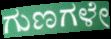
ಗುಣಗಳೇ